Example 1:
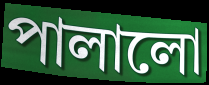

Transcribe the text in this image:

পালালো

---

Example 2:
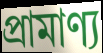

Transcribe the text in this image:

প্রামাণ্য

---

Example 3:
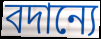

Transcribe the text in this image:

বদান্যে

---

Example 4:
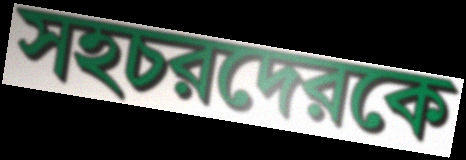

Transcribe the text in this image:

সহচরদেরকে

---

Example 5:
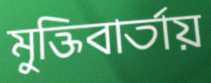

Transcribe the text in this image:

মুক্তিবার্তায়